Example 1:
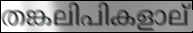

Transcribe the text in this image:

തങ്കലിപികളാല്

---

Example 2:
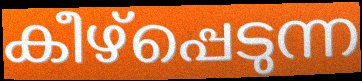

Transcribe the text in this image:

കീഴ്പ്പെടുന്ന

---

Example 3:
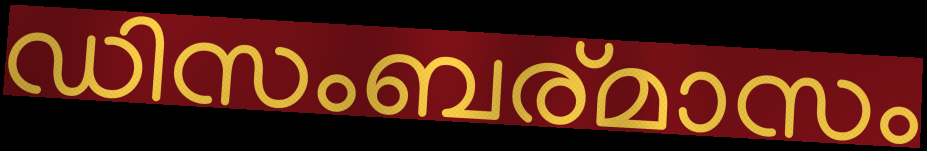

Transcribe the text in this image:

ഡിസംബര്മാസം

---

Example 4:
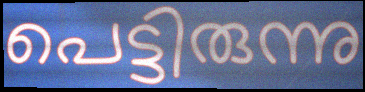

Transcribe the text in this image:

പെട്ടിരുന്നു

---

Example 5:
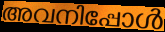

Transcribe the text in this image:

അവനിപ്പോൾ